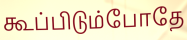
கூப்பிடும்போதே